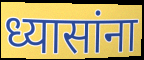
ध्यासांना